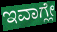
ಇವಾಗ್ಲೇ